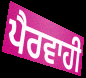
ਪੈਰਵਾਹੀ